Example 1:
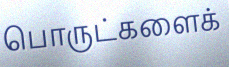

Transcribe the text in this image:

பொருட்களைக்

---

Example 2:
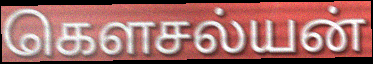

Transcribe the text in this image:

கௌசல்யன்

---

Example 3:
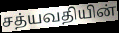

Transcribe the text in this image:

சத்யவதியின்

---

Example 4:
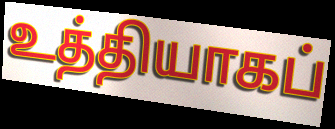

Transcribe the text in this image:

உத்தியாகப்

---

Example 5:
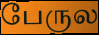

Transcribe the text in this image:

பேருல